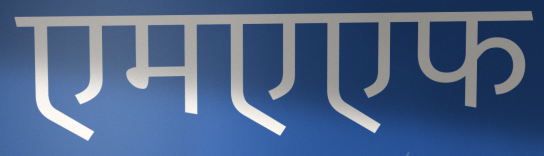
एमएएफ